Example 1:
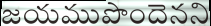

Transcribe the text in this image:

జయముపొందెనని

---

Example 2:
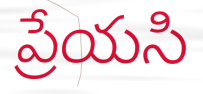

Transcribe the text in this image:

ప్రేయసి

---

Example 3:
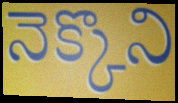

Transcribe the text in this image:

నెక్కొని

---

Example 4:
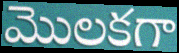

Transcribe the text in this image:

మొలకగా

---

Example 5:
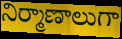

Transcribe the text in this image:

నిర్మాణాలుగా